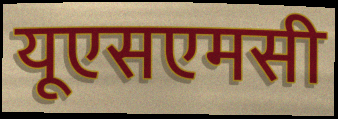
यूएसएमसी